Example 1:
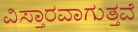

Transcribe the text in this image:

ವಿಸ್ತಾರವಾಗುತ್ತವೆ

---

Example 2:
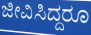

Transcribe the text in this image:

ಜೀವಿಸಿದ್ದರೂ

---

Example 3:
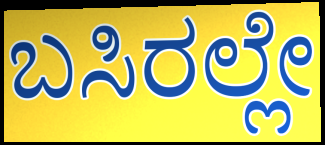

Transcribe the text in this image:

ಬಸಿರಲ್ಲೇ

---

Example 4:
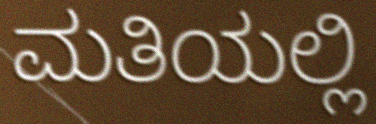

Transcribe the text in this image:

ಮತಿಯಲ್ಲಿ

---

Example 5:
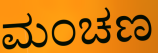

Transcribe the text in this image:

ಮಂಚಣ